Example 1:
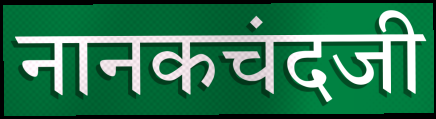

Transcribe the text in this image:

नानकचंदजी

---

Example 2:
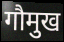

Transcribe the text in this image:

गौमुख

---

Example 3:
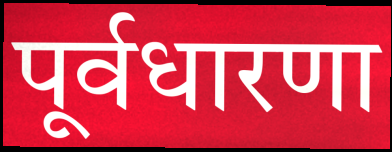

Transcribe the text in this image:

पूर्वधारणा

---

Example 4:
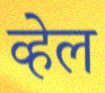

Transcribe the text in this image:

व्हेल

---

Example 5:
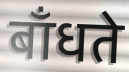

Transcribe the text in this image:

बाँधते